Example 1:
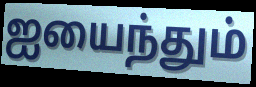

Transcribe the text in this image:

ஐயைந்தும்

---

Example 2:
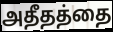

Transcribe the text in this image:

அதீதத்தை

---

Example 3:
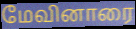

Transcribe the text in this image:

மேவினாரை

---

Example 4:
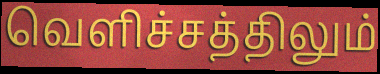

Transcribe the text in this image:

வெளிச்சத்திலும்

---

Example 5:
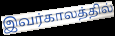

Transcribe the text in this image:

இவர்காலத்தில்